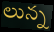
లున్న